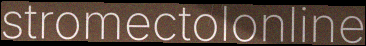
stromectolonline